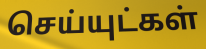
செய்யுட்கள்